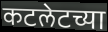
कटलेटच्या